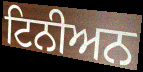
ਟਿਨੀਅਨ